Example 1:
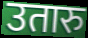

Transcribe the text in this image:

उतारु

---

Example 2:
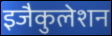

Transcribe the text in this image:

इजैकुलेशन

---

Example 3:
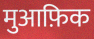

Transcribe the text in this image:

मुआफ़िक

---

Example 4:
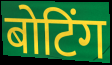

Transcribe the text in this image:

बोटिंग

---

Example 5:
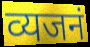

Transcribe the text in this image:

व्यजनं